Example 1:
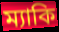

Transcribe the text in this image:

ম্যাকি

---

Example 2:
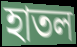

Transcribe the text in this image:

হাতল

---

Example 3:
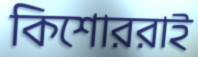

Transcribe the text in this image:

কিশোররাই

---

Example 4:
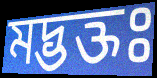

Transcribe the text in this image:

মদ্ভক্তঃ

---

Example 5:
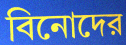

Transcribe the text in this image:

বিনোদের